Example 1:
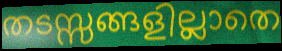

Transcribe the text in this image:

തടസ്സങ്ങളില്ലാതെ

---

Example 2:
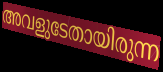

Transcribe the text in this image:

അവളുടേതായിരുന്ന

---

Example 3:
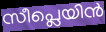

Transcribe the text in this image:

സീപ്ലെയിൻ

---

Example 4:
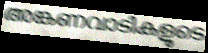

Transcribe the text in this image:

അങ്കണവാടികളുടെ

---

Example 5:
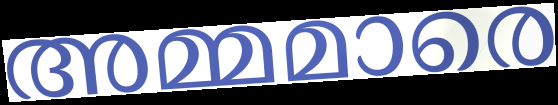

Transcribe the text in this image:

അമ്മമാരെ